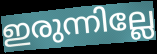
ഇരുന്നില്ലേ